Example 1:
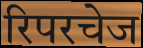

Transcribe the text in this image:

रिपरचेज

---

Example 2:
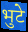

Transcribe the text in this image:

भुटे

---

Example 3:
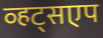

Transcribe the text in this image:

व्हट्सएप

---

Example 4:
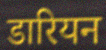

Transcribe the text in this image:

डारियन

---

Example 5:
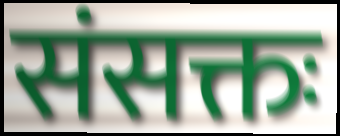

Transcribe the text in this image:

संसक्तः